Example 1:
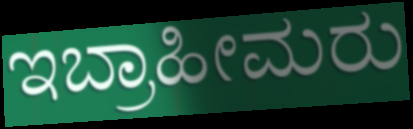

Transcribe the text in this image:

ಇಬ್ರಾಹೀಮರು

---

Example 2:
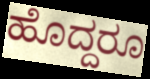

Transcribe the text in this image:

ಹೊದ್ದರೂ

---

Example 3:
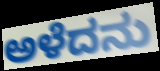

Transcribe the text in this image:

ಅಳೆದನು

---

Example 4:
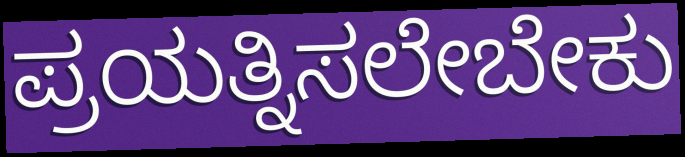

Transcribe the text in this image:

ಪ್ರಯತ್ನಿಸಲೇಬೇಕು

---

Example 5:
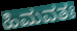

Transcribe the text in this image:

ಹಿಮವತಃ